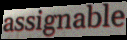
assignable